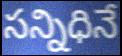
సన్నిధినే